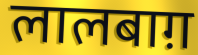
लालबाग़